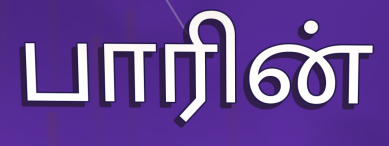
பாரின்